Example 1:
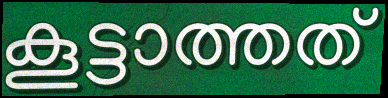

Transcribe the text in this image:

കൂട്ടാത്തത്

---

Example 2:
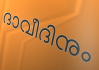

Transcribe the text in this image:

ദാവീദിനും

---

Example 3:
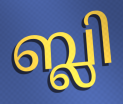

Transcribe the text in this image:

ബ്ലി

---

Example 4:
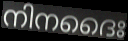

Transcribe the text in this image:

നിനദൈഃ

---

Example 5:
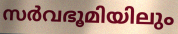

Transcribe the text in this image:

സർവഭൂമിയിലും